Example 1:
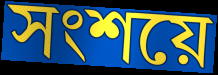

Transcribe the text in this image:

সংশয়ে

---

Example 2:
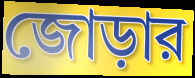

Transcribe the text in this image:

জোড়ার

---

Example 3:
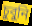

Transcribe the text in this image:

চুবুনি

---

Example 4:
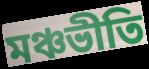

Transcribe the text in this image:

মঞ্চভীতি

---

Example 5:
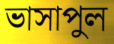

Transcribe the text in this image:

ভাসাপুল